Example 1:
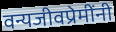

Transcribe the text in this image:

वन्यजीवप्रेमींनी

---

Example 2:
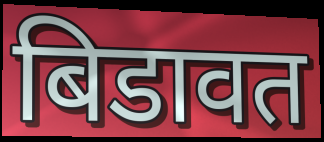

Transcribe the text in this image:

बिडावत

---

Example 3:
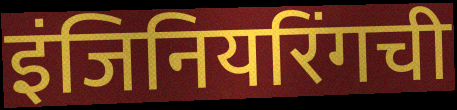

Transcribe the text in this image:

इंजिनियरिंगची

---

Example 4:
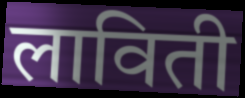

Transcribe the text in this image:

लाविती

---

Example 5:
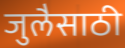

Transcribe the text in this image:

जुलैसाठी